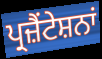
ਪ੍ਰਜ਼ੈਂਟੇਸ਼ਨਾਂ